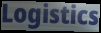
Logistics